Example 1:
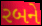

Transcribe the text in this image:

રબને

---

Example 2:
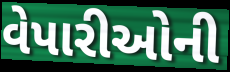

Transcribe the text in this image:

વેપારીઓની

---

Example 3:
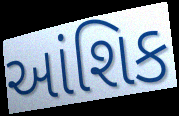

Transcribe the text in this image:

આંશિક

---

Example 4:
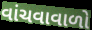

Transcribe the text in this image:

વાંચવાવાળો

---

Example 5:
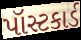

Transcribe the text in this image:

પૉસ્ટકાર્ડ